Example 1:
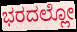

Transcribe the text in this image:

ಭರದಲ್ಲೋ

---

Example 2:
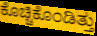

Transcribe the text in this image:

ಕೊಚ್ಚಿಕೊಂಡಿತ್ತು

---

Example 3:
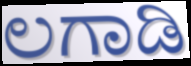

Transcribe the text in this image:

ಲಗಾಡಿ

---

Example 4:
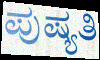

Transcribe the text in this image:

ಪುಷ್ಯತಿ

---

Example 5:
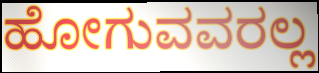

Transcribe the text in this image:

ಹೋಗುವವರಲ್ಲ